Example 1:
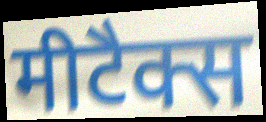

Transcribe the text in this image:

मीटैक्स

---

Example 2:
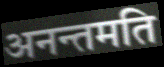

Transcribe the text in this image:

अनन्तमति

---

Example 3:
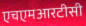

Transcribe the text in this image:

एचएमआरटीसी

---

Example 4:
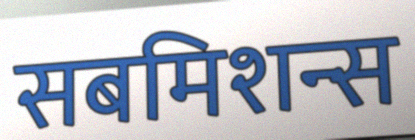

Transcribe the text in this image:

सबमिशन्स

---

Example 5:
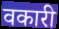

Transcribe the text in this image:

वकारी